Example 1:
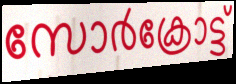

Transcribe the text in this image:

സോർക്രോട്ട്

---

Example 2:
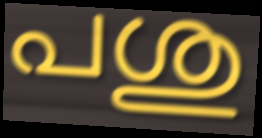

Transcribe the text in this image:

പശു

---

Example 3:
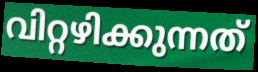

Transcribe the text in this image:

വിറ്റഴിക്കുന്നത്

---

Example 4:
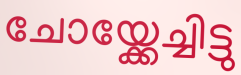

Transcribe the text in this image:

ചോയ്ക്കേച്ചിട്ടു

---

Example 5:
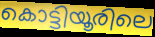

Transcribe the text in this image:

കൊട്ടിയൂരിലെ